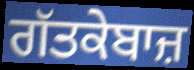
ਗੱਤਕੇਬਾਜ਼